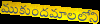
ముకుందమాలలోని